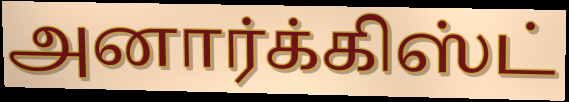
அனார்க்கிஸ்ட்